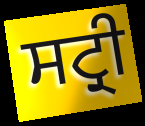
ਸਟ੍ਰੀ